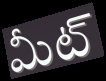
మీట్